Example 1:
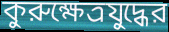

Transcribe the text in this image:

কুরুক্ষেত্রযুদ্ধের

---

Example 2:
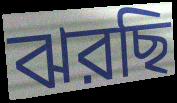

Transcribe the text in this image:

ঝরছি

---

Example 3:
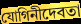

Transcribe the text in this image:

যোগিনীদেবতা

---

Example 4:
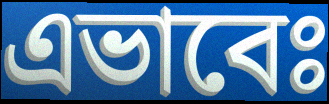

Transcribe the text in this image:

এভাবেঃ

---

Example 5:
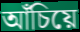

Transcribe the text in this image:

আঁচিয়ে